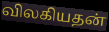
விலகியதன்